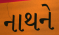
નાથને